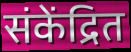
संकेंद्रित